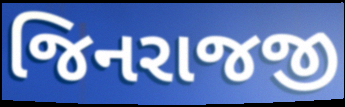
જિનરાજજી